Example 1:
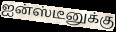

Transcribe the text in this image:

ஐன்ஸ்டீனுக்கு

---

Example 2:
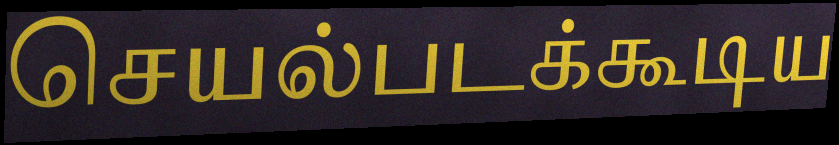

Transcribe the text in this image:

செயல்படக்கூடிய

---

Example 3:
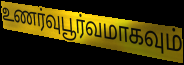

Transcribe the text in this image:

உணர்வுபூர்வமாகவும்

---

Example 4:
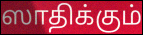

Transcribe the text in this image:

ஸாதிக்கும்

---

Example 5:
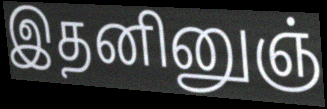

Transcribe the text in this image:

இதனினுஞ்